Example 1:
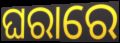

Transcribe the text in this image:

ଘରାରେ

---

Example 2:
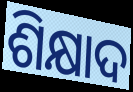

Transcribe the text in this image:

ଶିକ୍ଷାଦ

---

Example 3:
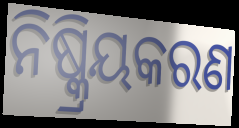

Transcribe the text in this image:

ନିଷ୍କ୍ରିୟକରଣ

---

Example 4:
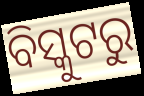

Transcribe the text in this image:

ବିସ୍କୁଟରୁ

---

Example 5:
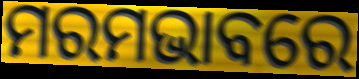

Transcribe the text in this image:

ମରମଭାବରେ